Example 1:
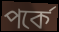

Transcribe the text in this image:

পর্কে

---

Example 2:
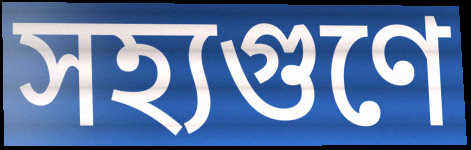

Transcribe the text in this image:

সহ্যগুণে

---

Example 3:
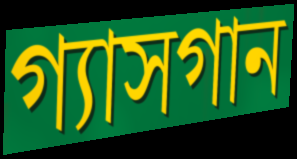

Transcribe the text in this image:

গ্যাসগান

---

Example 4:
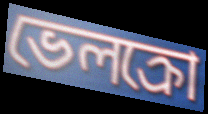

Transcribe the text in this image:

ভেলক্রো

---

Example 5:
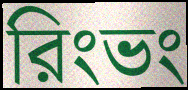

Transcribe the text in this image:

রিংভং